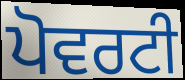
ਪੋਵਰਟੀ